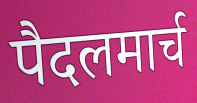
पैदलमार्च